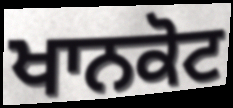
ਖਾਨਕੋਟ